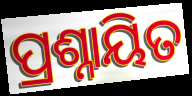
ପ୍ରଶ୍ନାୟିତ